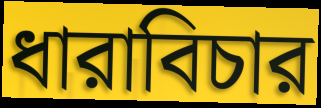
ধারাবিচার